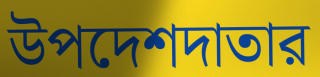
উপদেশদাতার